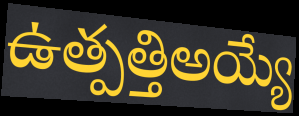
ఉత్పత్తిఅయ్యే